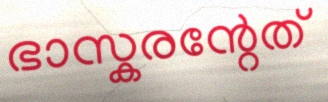
ഭാസ്കരന്റേത്